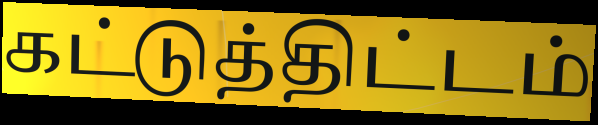
கட்டுத்திட்டம்